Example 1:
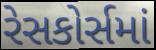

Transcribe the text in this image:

રેસકોર્સમાં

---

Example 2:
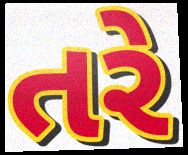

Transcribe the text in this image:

તરે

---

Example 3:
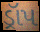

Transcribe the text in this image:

ડ્રૉપ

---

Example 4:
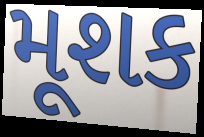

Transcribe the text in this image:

મૂશક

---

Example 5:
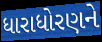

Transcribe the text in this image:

ધારાધોરણને